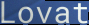
Lovat